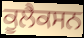
ਕੂਲੈਕਸਨ